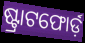
ଷ୍ଟ୍ରାଟଫୋର୍ଡ଼